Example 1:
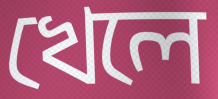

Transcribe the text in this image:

খেলে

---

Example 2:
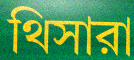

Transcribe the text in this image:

থিসারা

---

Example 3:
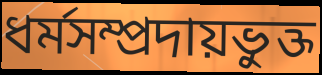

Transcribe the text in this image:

ধর্মসম্প্রদায়ভুক্ত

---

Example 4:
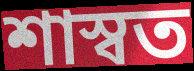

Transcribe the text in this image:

শাস্বত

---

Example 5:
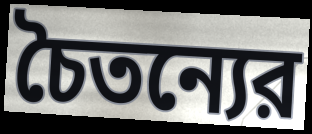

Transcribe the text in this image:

চৈতন্যের